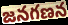
జనగణన